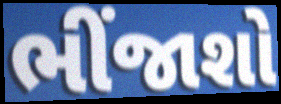
ભીંજાશો